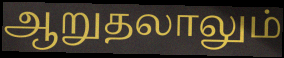
ஆறுதலாலும்